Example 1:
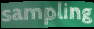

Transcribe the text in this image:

sampling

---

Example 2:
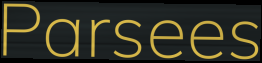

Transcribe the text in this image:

Parsees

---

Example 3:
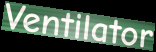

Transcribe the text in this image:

Ventilator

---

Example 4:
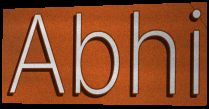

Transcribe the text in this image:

Abhi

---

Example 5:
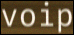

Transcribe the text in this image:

voip